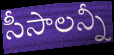
సీసాలన్నీ